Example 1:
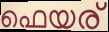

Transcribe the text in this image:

ഫെയര്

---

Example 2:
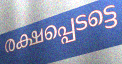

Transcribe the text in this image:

രക്ഷപ്പെടട്ടെ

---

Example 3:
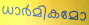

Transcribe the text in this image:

ധാർമികമോ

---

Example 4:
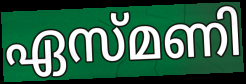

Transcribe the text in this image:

ഏസ്മണി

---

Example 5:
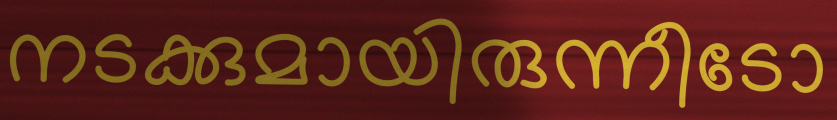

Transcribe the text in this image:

നടക്കുമായിരുന്നീടോ